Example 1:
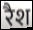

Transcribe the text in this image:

रैश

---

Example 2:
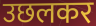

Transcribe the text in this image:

उछलकर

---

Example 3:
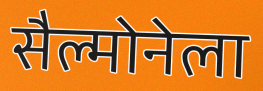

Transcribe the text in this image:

सैल्मोनेला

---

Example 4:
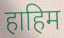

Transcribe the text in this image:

हाहिम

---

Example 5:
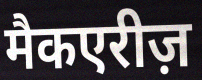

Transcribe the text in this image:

मैकएरीज़